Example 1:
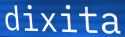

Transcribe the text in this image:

dixita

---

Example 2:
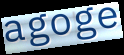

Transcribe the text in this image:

agoge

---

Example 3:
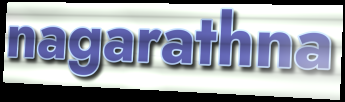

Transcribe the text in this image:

nagarathna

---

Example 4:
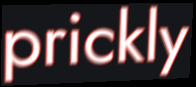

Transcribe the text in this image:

prickly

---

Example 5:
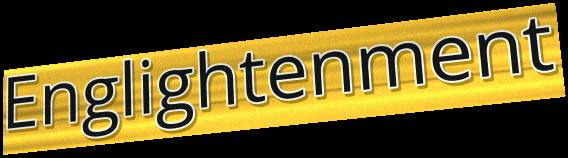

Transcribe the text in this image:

Englightenment